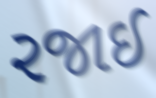
રજાઈ